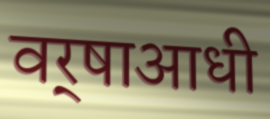
वर्षाआधी